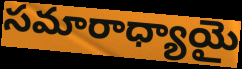
సమారాధ్యాయై